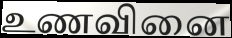
உணவினை